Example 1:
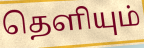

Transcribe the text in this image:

தெளியும்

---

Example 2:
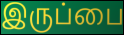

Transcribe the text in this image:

இருப்பை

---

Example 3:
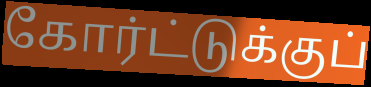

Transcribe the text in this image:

கோர்ட்டுக்குப்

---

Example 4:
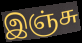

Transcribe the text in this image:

இஞ்சு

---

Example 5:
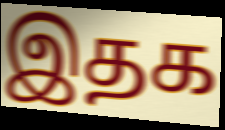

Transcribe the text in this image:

இதக